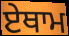
ਏਥਾਮ